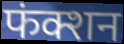
फंक्शन